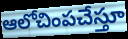
ఆలోచింపచేస్తూ